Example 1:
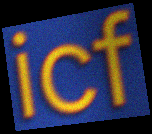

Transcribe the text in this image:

icf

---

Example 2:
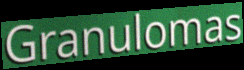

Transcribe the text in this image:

Granulomas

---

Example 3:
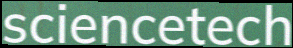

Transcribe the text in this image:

sciencetech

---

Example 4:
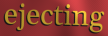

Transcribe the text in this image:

ejecting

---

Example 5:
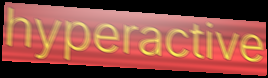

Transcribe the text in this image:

hyperactive